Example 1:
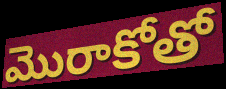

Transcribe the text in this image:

మొరాకోతో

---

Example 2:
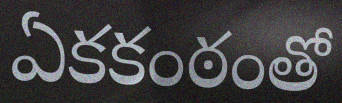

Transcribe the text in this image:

ఏకకంఠంతో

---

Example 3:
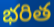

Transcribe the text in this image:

భరిత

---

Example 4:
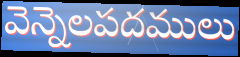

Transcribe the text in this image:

వెన్నెలపదములు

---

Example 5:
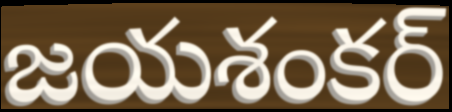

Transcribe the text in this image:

జయశంకర్